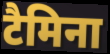
टैमिना